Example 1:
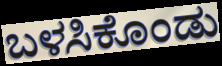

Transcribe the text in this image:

ಬಳಸಿಕೊಂಡು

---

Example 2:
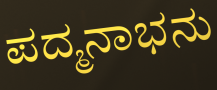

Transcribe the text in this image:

ಪದ್ಮನಾಭನು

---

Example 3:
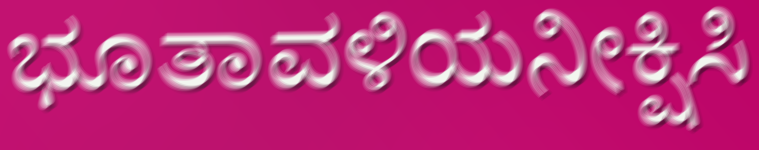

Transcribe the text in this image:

ಭೂತಾವಳಿಯನೀಕ್ಷಿಸಿ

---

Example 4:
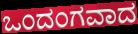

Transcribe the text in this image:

ಒಂದಂಗವಾದ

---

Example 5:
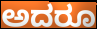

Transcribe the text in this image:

ಅದರೂ